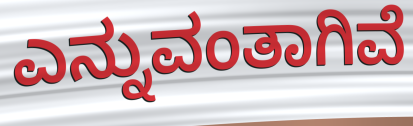
ಎನ್ನುವಂತಾಗಿವೆ